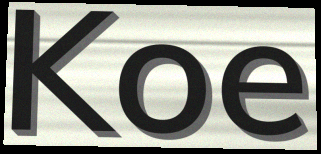
Koe